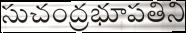
సుచంద్రభూపతిని